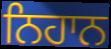
ਨਿਹਾਨ